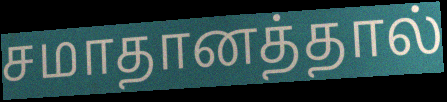
சமாதானத்தால்